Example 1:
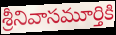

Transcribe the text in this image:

శ్రీనివాసమూర్తికి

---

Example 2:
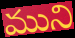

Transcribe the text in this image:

ముని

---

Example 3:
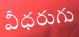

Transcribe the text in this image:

వీధరుగు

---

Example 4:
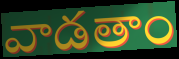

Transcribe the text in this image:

వాడతాం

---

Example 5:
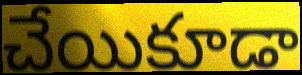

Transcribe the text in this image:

చేయికూడా